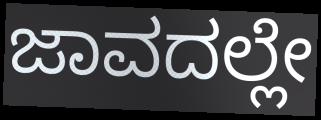
ಜಾವದಲ್ಲೇ